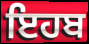
ਇਹਬ